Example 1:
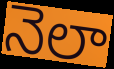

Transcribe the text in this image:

నెలా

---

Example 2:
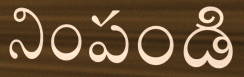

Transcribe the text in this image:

నింపండి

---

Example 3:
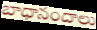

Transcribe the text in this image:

బాధానందాలు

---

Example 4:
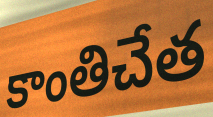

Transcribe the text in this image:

కాంతిచేత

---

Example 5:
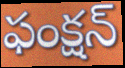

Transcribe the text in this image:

ఫంక్షన్